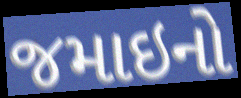
જમાઇનો